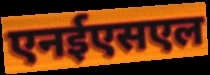
एनईएसएल